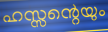
ഹസ്സന്റെയും